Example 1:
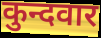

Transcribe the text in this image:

कुन्दवार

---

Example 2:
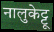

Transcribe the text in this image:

नालुकेट्टू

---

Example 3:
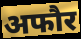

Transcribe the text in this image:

अफौर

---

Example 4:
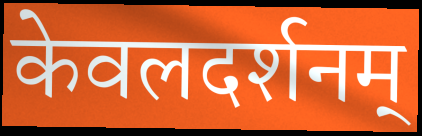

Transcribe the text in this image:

केवलदर्शनम्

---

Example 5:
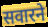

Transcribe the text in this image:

सवारने